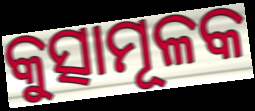
କୁତ୍ସାମୂଳକ